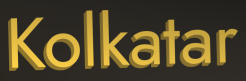
Kolkatar